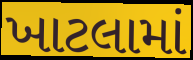
ખાટલામાં